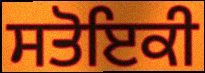
ਸਤੋਇਕੀ